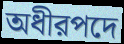
অধীরপদে